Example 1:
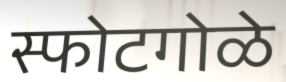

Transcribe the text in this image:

स्फोटगोळे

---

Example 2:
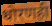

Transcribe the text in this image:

धोरणही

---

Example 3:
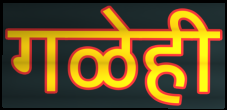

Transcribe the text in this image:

गळेही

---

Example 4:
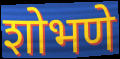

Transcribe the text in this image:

शोभणे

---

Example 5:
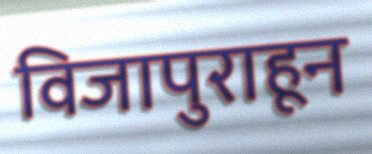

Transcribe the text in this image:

विजापुराहून